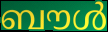
ബൗൾ